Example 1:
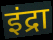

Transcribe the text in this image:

इंद्रा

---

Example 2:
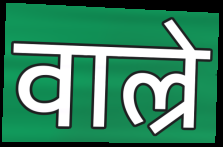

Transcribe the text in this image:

वाल्रे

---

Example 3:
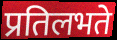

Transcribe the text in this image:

प्रतिलभते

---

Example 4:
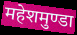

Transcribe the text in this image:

महेशमुण्डा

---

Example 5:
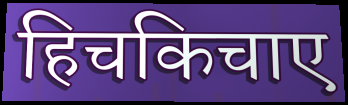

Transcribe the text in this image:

हिचकिचाए